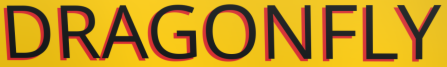
DRAGONFLY